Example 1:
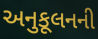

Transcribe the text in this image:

અનુકૂલનની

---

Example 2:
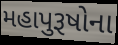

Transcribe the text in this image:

મહાપુરૂષોના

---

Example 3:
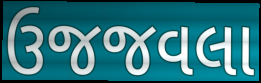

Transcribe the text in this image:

ઉજજવલા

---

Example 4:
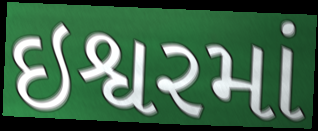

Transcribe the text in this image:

ઇશ્વરમાં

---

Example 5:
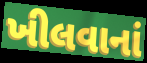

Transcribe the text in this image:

ખીલવાનાં